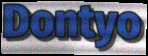
Dontyo